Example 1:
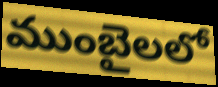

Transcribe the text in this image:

ముంబైలలో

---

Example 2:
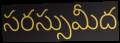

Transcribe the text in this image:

సరస్సుమీద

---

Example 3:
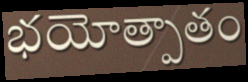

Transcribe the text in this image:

భయోత్పాతం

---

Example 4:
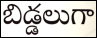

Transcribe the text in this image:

బిడ్డలుగా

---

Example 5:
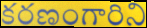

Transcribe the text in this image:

కరణంగారిని